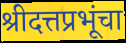
श्रीदत्तप्रभूंचा